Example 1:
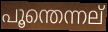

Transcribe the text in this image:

പൂന്തെന്നല്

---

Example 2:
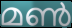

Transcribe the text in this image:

മൺ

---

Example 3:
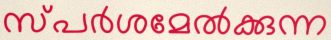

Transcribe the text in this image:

സ്പർശമേൽക്കുന്ന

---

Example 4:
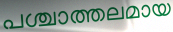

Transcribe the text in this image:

പശ്ചാത്തലമായ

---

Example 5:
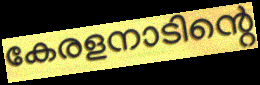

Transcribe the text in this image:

കേരളനാടിന്റെ